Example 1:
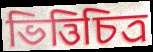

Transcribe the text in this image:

ভিত্তিচিত্র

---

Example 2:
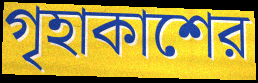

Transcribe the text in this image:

গৃহাকাশের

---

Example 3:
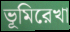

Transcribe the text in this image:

ভূমিরেখা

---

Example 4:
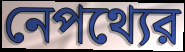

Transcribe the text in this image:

নেপথ্যের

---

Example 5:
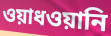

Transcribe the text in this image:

ওয়াধওয়ানি